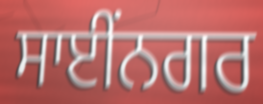
ਸਾਈਂਨਗਰ